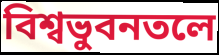
বিশ্বভুবনতলে